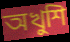
অখুশি